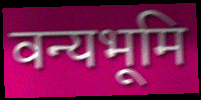
वन्यभूमि